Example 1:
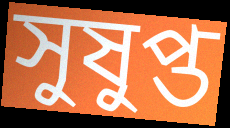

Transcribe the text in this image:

সুষুপ্ত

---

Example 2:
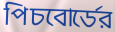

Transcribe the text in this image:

পিচবোর্ডের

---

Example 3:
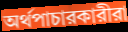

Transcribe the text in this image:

অর্থপাচারকারীরা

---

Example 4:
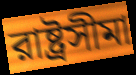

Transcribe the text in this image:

রাষ্ট্রসীমা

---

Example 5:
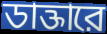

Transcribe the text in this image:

ডাক্তারে